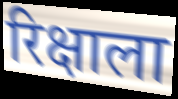
रिक्षाला